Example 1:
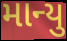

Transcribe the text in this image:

માન્યુ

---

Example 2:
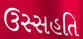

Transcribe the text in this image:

ઉસ્સહતિ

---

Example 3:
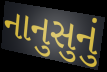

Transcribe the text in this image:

નાનુસુનું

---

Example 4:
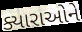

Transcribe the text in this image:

ક્યારાઓને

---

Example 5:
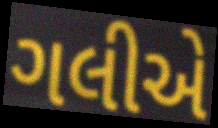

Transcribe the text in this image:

ગલીએ